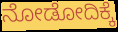
ನೋಡೋದಿಕ್ಕೆ